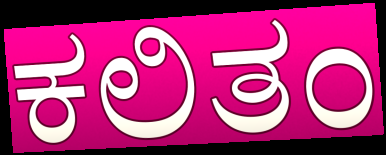
ಕಲಿತಂ